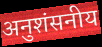
अनुशंसनीय